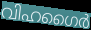
വിഹഗൈർ